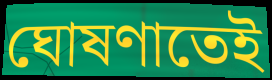
ঘোষণাতেই